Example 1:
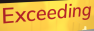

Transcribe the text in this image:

Exceeding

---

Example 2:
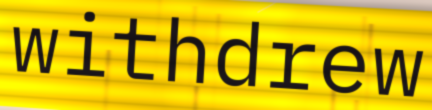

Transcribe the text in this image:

withdrew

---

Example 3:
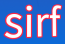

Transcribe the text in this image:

sirf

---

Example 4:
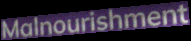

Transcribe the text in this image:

Malnourishment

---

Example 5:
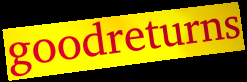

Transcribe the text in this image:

goodreturns